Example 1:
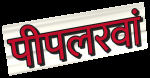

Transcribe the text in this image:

पीपलरवां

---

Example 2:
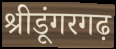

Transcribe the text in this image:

श्रीडूंगरगढ़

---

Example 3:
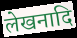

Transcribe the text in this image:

लेखनादि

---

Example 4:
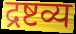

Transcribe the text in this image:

द्रष्टव्य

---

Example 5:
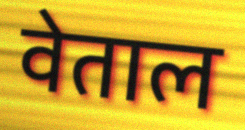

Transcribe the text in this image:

वेताल